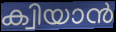
ക്വിയാൻ